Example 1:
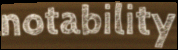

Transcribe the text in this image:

notability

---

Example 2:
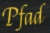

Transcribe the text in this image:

Pfad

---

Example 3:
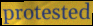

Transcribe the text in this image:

protested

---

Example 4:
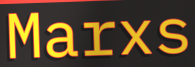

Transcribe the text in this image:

Marxs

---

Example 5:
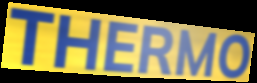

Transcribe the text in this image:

THERMO